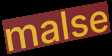
malse